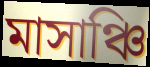
মাসাঞ্চি